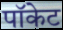
पॉकेट